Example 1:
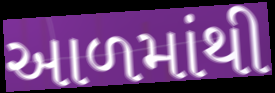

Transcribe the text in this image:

આળમાંથી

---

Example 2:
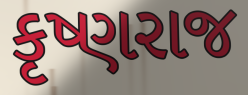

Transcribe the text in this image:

કૃષ્ણરાજ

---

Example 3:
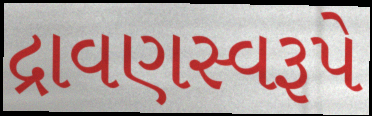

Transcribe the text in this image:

દ્રાવણસ્વરૂપે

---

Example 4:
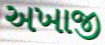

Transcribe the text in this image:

અખાજી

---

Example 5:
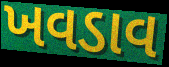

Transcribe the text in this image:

ખવડાવ